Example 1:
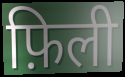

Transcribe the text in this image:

फ़िली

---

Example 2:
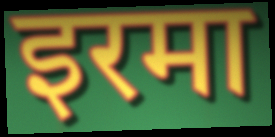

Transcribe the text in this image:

इरमा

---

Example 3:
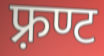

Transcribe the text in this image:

फ़्रण्ट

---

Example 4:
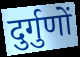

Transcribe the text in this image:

दुर्गुणों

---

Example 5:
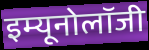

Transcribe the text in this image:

इम्यूनोलॉजी